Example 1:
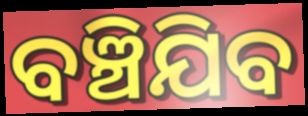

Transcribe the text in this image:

ବଞ୍ଚିଯିବ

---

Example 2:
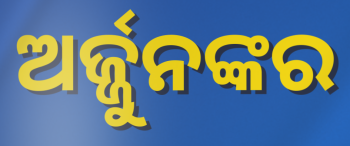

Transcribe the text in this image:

ଅର୍ଜ୍ଜୁନଙ୍କର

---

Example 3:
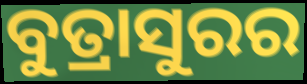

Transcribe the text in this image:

ବୁତ୍ରାସୁରର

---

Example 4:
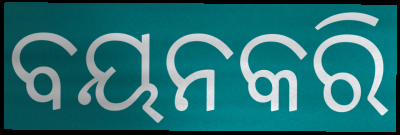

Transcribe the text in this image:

ବୟନକରି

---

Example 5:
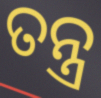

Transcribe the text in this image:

ତନ୍ତ୍ର